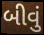
બીવું